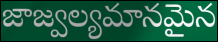
జాజ్వల్యమానమైన